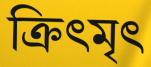
ক্রিৎমৃৎ